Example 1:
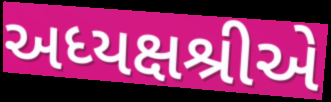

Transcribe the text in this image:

અધ્યક્ષશ્રીએ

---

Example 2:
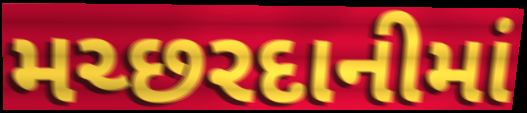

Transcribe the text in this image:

મચ્છરદાનીમાં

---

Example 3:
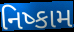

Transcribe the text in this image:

નિષ્કામ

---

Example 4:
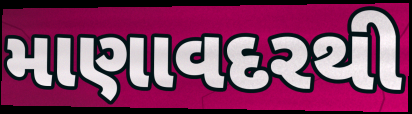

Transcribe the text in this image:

માણાવદરથી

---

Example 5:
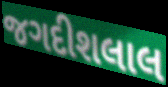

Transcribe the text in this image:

જગદીશલાલ